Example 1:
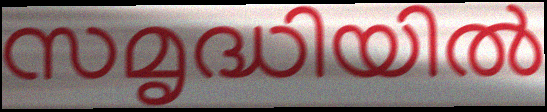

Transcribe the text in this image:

സമൃദ്ധിയിൽ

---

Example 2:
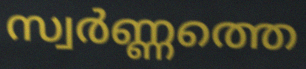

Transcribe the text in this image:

സ്വർണ്ണത്തെ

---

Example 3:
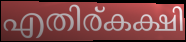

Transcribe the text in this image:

എതിര്കക്ഷി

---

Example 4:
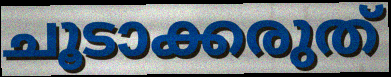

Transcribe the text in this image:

ചൂടാക്കരുത്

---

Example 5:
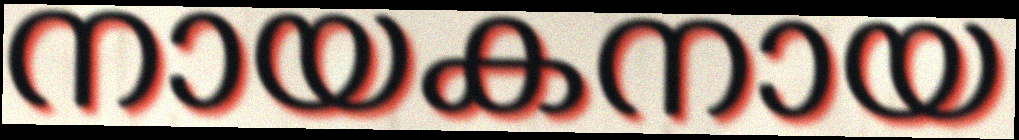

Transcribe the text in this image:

നായകനായ